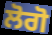
ਲੋਗੋ